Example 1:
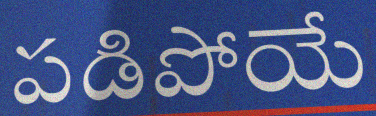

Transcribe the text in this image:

పడిపోయే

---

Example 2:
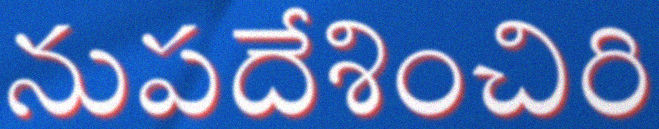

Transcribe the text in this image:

నుపదేశించిరి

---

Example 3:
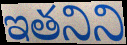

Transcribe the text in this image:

ఇతనిని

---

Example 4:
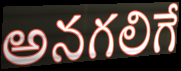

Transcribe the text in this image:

అనగలిగే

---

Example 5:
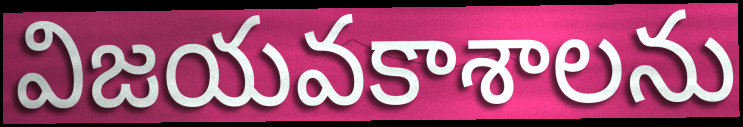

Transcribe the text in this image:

విజయవకాశాలను